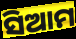
ସିଆମ